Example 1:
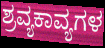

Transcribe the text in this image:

ಶ್ರವ್ಯಕಾವ್ಯಗಳ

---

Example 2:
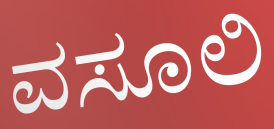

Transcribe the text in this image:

ವಸೂಲಿ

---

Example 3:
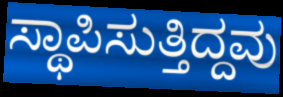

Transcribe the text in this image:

ಸ್ಥಾಪಿಸುತ್ತಿದ್ದವು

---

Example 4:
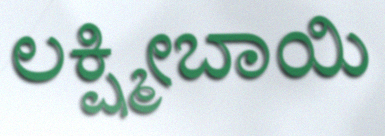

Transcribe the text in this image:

ಲಕ್ಷ್ಮೀಬಾಯಿ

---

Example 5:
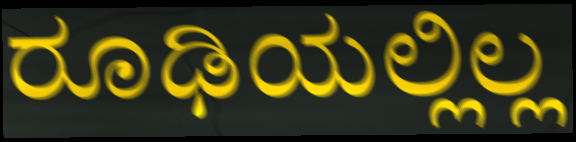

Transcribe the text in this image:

ರೂಢಿಯಲ್ಲಿಲ್ಲ